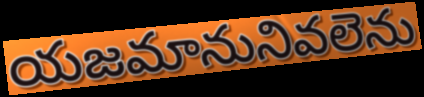
యజమానునివలెను